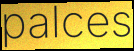
palces